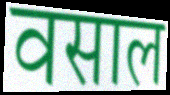
वसाल